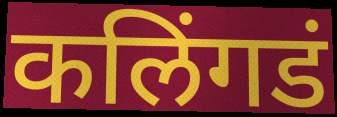
कलिंगडं